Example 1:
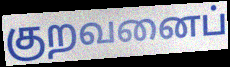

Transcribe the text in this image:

குறவனைப்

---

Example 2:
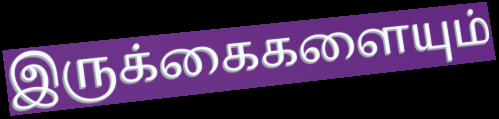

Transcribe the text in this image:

இருக்கைகளையும்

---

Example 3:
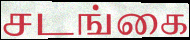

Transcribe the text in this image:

சடங்கை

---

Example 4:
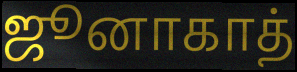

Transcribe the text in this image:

ஜூனாகாத்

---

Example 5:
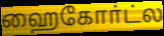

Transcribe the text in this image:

ஹைகோர்ட்ல